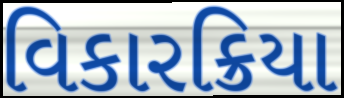
વિકારક્રિયા